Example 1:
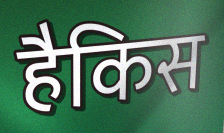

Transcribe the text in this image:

हैकिस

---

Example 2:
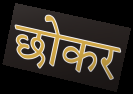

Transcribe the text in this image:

छोकर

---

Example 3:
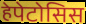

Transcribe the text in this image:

हेपेटोसिस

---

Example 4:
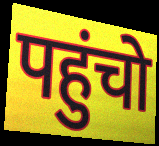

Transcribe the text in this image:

पहुंचो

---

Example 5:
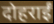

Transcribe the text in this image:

दोहराईं